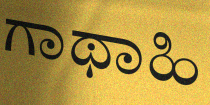
ಗಾಥಾಹಿ